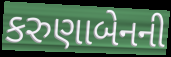
કરુણાબેનની